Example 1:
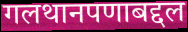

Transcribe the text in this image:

गलथानपणाबद्दल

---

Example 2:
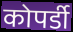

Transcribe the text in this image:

कोपर्डी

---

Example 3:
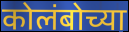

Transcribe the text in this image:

कोलंबोच्या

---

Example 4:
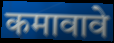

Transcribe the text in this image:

कमावावे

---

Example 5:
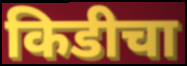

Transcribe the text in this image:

किडीचा